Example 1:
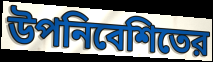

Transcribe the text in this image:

উপনিবেশিতের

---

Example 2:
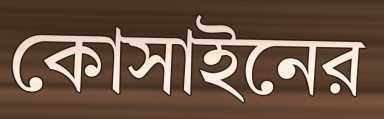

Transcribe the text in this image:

কোসাইনের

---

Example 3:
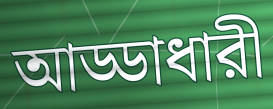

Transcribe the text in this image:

আড্ডাধারী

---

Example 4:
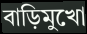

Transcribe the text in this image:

বাড়িমুখো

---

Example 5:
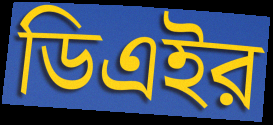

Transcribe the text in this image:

ডিএইর